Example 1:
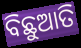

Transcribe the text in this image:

ବିଛୁଆତି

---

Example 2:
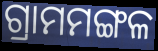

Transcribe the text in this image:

ଗ୍ରାମମଙ୍ଗଳ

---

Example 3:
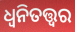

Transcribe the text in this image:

ଧ୍ଵନିତତ୍ତ୍ଵର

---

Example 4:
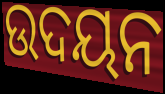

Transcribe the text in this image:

ଉଦୟନ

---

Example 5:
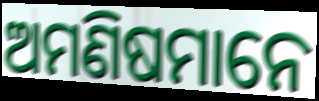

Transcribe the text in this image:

ଅମଣିଷମାନେ